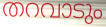
തറവാടും